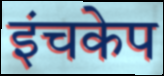
इंचकेप